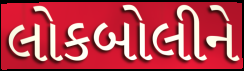
લોકબોલીને